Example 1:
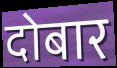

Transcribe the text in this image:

दोबार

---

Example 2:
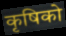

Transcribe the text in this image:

कृषिको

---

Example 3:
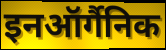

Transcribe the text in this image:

इनऑर्गैनिक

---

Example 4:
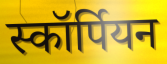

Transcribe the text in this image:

स्कॉर्पियन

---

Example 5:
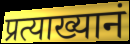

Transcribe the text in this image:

प्रत्याख्यानं